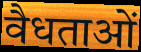
वैधताओं